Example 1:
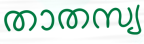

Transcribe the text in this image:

താതസ്യ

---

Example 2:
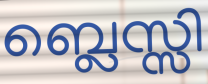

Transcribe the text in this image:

ബ്ലെസ്സി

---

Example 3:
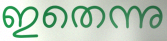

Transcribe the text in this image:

ഇതെന്നു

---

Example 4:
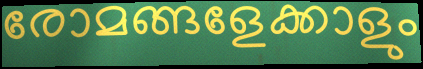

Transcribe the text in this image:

രോമങ്ങളേക്കാളും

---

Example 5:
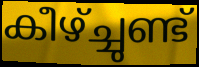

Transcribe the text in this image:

കീഴ്ച്ചുണ്ട്